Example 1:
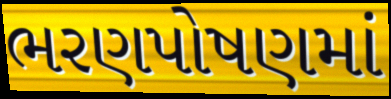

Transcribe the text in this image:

ભરણપોષણમાં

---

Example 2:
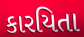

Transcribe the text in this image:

કારયિતા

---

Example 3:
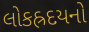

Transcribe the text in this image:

લોકહ્રદયનો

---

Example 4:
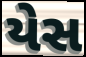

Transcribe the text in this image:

યેસ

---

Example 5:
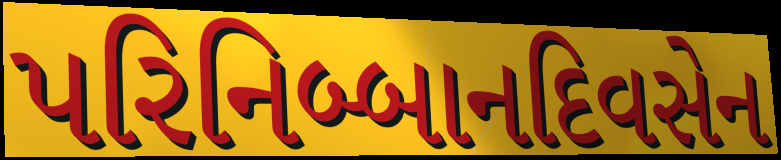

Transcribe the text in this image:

પરિનિબ્બાનદિવસેન